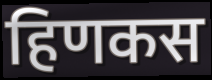
हिणकस